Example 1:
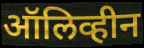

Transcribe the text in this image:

ऑलिव्हीन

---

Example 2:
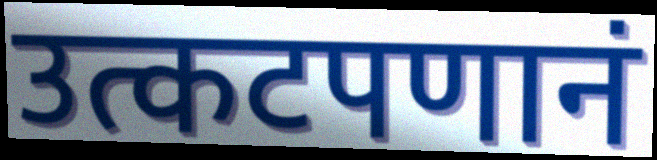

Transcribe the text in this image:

उत्कटपणानं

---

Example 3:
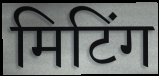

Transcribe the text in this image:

मिटिंग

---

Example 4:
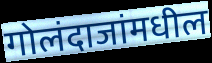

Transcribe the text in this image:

गोलंदाजांमधील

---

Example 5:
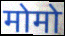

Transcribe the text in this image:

मोमो